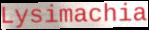
Lysimachia